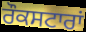
ਰੌਕਸਟਾਰਾਂ